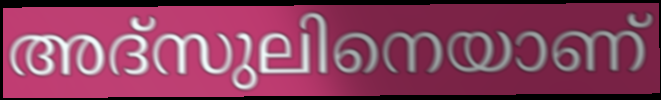
അദ്സുലിനെയാണ്